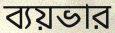
ব্যয়ভার